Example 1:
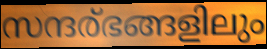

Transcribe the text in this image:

സന്ദര്ഭങ്ങളിലും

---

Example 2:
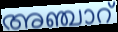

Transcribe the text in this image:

അഞ്ചാറ്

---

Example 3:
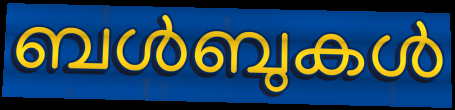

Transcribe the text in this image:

ബൾബുകൾ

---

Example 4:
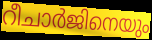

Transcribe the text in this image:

റീചാർജിനെയും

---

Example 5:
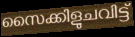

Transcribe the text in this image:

സൈക്കിളുചവിട്ട്